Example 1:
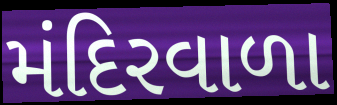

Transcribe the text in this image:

મંદિરવાળા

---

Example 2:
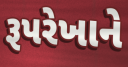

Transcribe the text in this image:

રૂપરેખાને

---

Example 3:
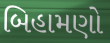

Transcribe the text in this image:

બિહામણો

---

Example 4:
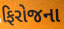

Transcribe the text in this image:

ફિરોજના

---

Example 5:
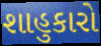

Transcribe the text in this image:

શાહુકારો